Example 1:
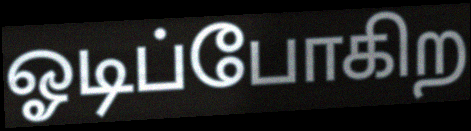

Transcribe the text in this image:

ஓடிப்போகிற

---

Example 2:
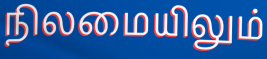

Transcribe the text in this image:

நிலமையிலும்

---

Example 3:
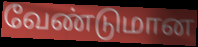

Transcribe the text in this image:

வேண்டுமான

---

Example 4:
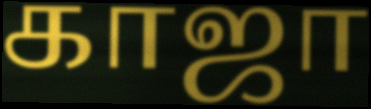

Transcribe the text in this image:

காஜா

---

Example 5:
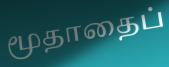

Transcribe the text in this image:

மூதாதைப்